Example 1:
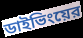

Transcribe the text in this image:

ডাইভিংয়ের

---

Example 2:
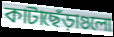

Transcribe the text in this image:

কাটাছেঁড়াগুলো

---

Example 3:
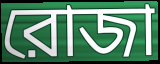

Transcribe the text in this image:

রোজা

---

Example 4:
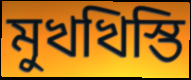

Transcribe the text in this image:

মুখখিস্তি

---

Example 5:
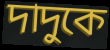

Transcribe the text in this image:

দাদুকে